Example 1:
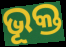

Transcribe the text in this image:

ଭୂକ୍ତ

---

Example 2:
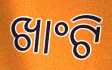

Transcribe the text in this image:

ଖାଂଟି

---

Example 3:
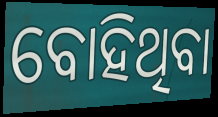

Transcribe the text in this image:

ବୋହିଥିବା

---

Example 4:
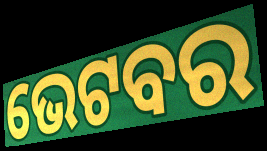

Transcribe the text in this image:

ଭେଟବର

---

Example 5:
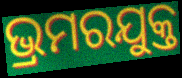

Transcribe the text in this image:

ଭ୍ରମରଯୁକ୍ତ